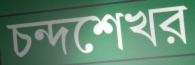
চন্দশেখর